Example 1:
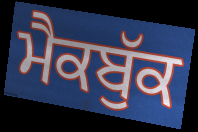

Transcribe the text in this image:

ਮੈਕਬੁੱਕ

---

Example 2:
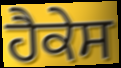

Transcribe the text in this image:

ਹੈਕੇਸ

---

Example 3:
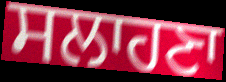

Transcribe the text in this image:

ਸਲਾਹਣਾ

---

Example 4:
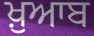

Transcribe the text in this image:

ਖ਼ੁਆਬ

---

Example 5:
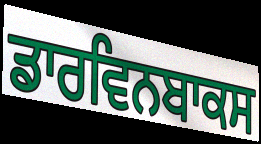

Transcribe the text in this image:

ਡਾਰਵਿਨਬਾਕਸ